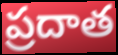
ప్రదాత